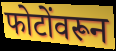
फोटोंवरून